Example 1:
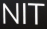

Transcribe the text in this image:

NIT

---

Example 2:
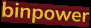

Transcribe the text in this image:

binpower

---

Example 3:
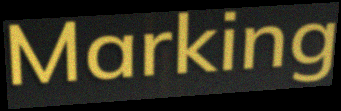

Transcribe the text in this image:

Marking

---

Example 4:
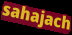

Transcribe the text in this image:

sahajach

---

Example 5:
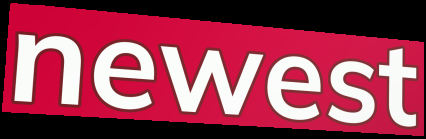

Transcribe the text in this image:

newest